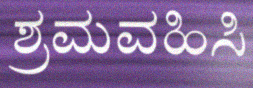
ಶ್ರಮವಹಿಸಿ